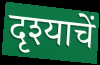
दृश्याचें